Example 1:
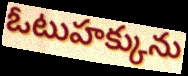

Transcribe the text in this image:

ఓటుహక్కును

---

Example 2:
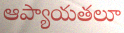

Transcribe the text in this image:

ఆప్యాయతలూ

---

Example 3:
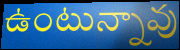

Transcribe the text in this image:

ఉంటున్నావు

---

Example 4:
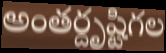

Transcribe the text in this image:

అంతర్దృష్టిగల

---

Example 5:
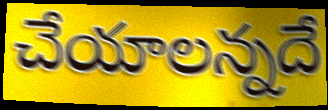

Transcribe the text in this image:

చేయాలన్నదే